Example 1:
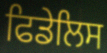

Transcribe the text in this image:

ਫਿਡੇਲਿਸ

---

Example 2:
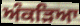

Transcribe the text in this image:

ਅੰਕੜਿਆ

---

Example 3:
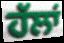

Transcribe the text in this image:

ਹੱਲਾਂ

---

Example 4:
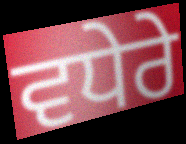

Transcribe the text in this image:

ਵਧੇਰੇ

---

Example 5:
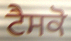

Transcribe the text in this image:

ਟੈਸਕੋ